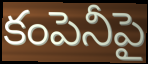
కంపెనీపై